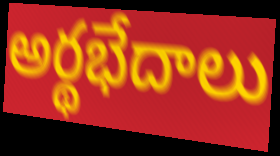
అర్థభేదాలు